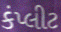
કંપ્લીટ